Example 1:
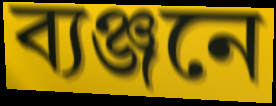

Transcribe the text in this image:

ব্যঞ্জনে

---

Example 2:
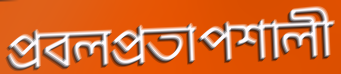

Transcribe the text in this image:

প্রবলপ্রতাপশালী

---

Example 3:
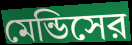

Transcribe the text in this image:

মেন্ডিসের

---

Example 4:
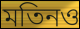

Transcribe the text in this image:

মতিনও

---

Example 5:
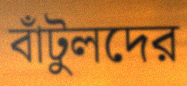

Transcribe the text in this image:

বাঁটুলদের